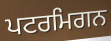
ਪਟਰਮਿਗਨ